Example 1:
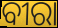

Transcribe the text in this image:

ବୀରା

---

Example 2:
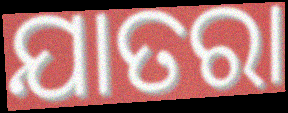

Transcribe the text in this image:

ଯାତରା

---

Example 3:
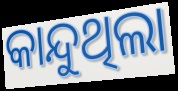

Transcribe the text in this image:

କାନ୍ଦୁଥିଲା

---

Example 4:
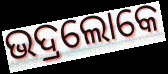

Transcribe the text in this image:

ଭଦ୍ରଲୋକେ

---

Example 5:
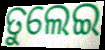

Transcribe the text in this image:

ତୁଲେଇ